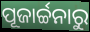
ପୂଜାର୍ଚ୍ଚନାରୁ